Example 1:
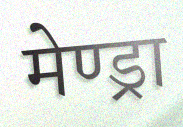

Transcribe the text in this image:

मेण्ड्रा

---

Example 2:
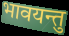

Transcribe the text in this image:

भावयन्तु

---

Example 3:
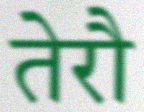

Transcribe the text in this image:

तेरौ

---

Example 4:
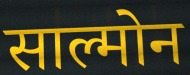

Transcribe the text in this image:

साल्मोन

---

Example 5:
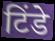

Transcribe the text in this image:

टिंडे